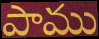
పాము